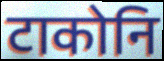
टाकोनि